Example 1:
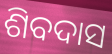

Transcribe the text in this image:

ଶିବଦାସ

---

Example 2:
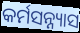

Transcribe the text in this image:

କର୍ମସନ୍ନ୍ୟାସ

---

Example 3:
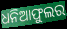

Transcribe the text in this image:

ଧନିଆଫୁଲର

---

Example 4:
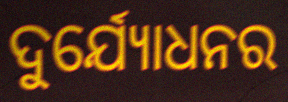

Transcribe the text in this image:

ଦୁର୍ଯ୍ୟୋଧନର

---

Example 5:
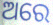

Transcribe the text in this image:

ଅରେ